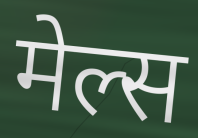
मेल्स